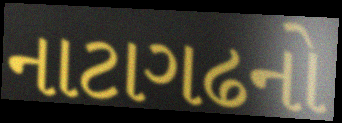
નાટાગઢનો